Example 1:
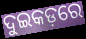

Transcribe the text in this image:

ଦୁଇକଡ଼ରେ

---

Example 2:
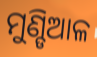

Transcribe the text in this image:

ମୁଣ୍ଡିଆଳ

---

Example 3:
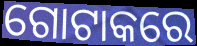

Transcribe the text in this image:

ଗୋଟାକରେ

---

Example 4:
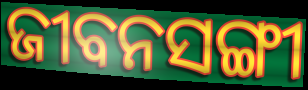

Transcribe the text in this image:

ଜୀବନସଙ୍ଗୀ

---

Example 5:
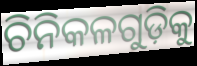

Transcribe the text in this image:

ଚିନିକଳଗୁଡ଼ିକୁ